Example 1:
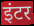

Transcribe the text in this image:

इंटर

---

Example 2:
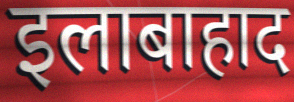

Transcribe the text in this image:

इलाबाहाद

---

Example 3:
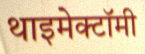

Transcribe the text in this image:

थाइमेक्टॉमी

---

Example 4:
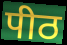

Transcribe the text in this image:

पीठ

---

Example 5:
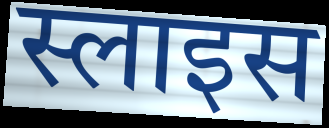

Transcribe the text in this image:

स्लाइस